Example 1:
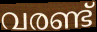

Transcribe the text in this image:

വരണ്ട്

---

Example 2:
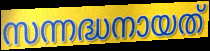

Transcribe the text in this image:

സന്നദ്ധനായത്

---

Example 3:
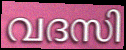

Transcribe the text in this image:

വദസി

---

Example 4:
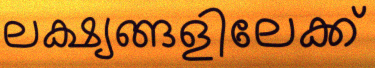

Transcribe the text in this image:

ലക്ഷ്യങ്ങളിലേക്ക്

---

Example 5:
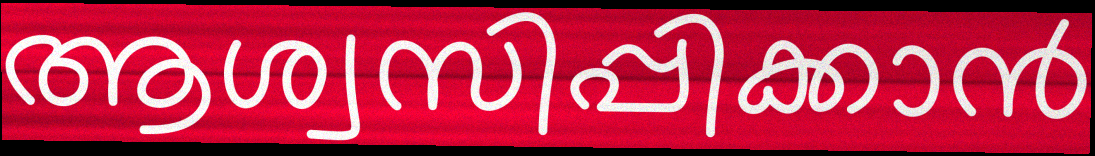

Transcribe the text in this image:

ആശ്വസിപ്പിക്കാൻ